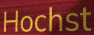
Hochst